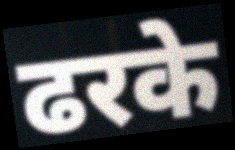
ढरके